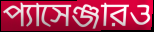
প্যাসেঞ্জারও